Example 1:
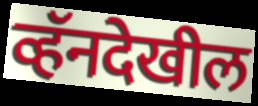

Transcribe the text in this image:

व्हॅनदेखील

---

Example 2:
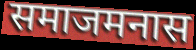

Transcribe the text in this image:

समाजमनास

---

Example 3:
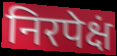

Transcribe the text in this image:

निरपेक्षं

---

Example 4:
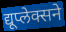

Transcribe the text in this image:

द्यूप्लेक्सने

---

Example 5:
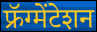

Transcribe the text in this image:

फ्रॅग्मेंटेशन